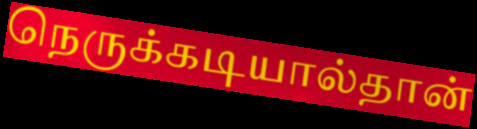
நெருக்கடியால்தான்